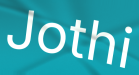
Jothi